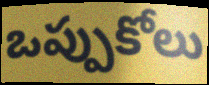
ఒప్పుకోలు